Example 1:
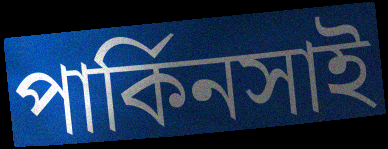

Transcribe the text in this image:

পার্কিনসাই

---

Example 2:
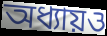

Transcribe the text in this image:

অধ্যায়ও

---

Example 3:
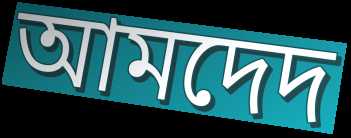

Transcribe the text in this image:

আমদেদ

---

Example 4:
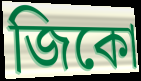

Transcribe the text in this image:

জিকো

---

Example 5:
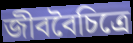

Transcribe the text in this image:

জীববৈচিত্রে